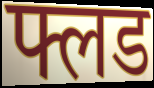
फ्लड